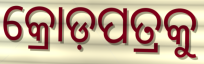
କ୍ରୋଡ଼ପତ୍ରକୁ